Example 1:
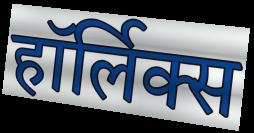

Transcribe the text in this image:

हॉर्लिक्स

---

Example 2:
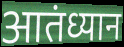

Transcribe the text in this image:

आतंध्यान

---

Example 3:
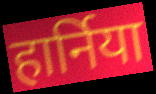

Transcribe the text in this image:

हार्निया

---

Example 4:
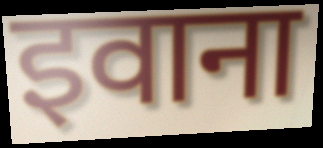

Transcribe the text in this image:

इवाना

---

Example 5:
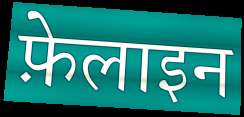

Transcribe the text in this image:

फ़ेलाइन